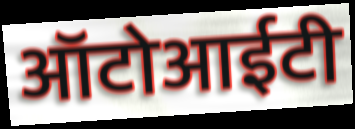
ऑटोआईटी